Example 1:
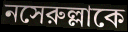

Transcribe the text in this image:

নসেরুল্লাকে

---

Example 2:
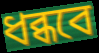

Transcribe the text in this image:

ধব্ধবে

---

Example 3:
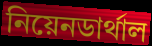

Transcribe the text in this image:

নিয়েনডার্থাল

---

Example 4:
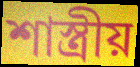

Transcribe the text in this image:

শাস্ত্রীয়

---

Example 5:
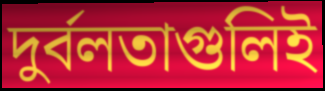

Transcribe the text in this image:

দুর্বলতাগুলিই